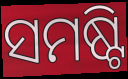
ସମଷ୍ଟି